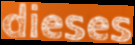
dieses